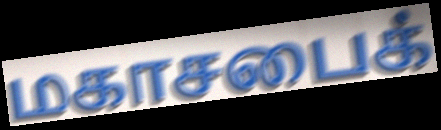
மகாசபைக்